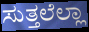
ಸುತ್ತಲೆಲ್ಲಾ